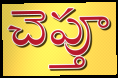
చెప్తూ